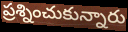
ప్రశ్నించుకున్నారు